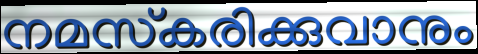
നമസ്‌കരിക്കുവാനും